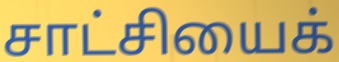
சாட்சியைக்